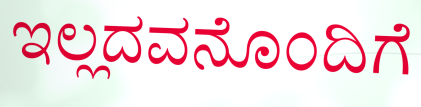
ಇಲ್ಲದವನೊಂದಿಗೆ